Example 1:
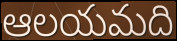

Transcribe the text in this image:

ఆలయమది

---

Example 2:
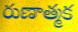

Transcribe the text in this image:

రుణాత్మక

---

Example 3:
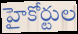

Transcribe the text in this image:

హైకోర్టుల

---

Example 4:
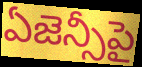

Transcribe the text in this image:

ఏజెన్సీపై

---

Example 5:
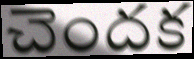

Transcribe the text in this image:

చెందక